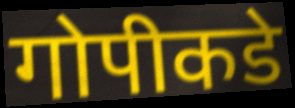
गोपीकडे